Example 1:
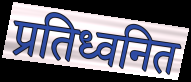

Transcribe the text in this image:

प्रतिध्वनित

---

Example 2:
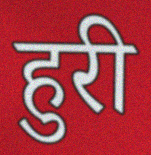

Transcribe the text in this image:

हुरी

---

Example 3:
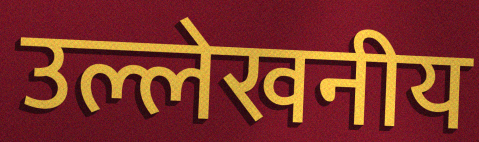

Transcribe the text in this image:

उल्लेखनीय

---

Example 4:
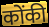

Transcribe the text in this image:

कोंकी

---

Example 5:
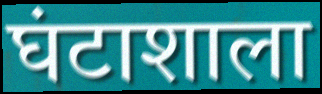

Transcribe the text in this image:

घंटाशाला